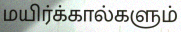
மயிர்க்கால்களும்